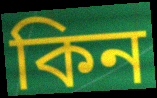
কিন